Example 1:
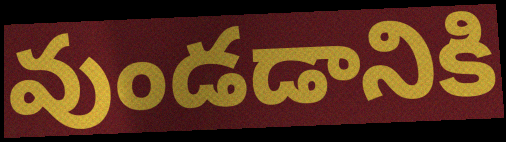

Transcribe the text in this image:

వుండడానికి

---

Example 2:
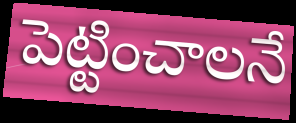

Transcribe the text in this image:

పెట్టించాలనే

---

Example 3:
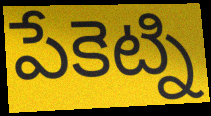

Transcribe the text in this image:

పేకెట్ని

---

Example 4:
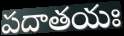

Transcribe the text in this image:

పదాతయః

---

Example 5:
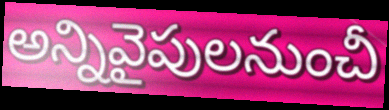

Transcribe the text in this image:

అన్నివైపులనుంచీ